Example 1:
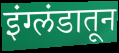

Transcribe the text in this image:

इंग्लंडातून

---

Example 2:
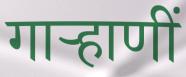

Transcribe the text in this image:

गाऱ्हाणीं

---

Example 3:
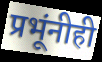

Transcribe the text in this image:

प्रभूंनीही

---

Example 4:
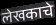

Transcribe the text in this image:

लेखकाचे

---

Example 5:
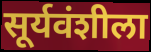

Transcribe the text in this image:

सूर्यवंशीला